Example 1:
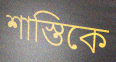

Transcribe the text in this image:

শাস্তিকে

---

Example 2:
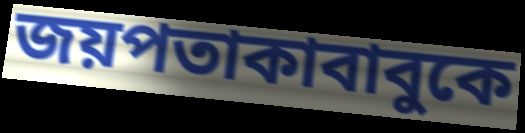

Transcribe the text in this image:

জয়পতাকাবাবুকে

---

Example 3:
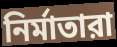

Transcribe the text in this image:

নির্মাতারা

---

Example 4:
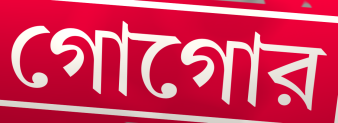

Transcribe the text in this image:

গোগোর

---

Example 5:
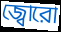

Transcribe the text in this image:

জ্বোরো